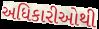
અધિકારીઓથી